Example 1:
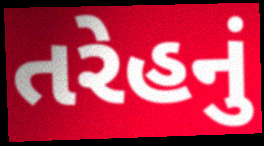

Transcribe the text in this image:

તરેહનું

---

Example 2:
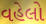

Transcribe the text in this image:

વહેલો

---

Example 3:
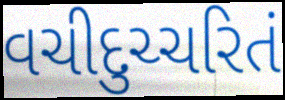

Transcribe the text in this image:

વચીદુચ્ચરિતં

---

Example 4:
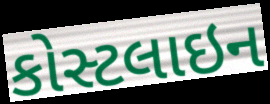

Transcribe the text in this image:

કોસ્ટલાઇન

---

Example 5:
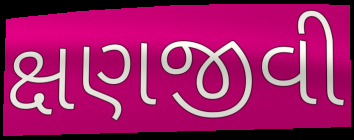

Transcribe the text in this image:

ક્ષણજીવી